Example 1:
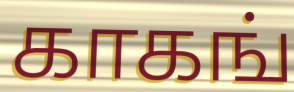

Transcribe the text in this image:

காகங்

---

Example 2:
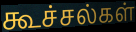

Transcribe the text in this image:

கூச்சல்கள்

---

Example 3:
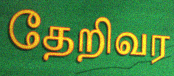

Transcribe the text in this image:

தேறிவர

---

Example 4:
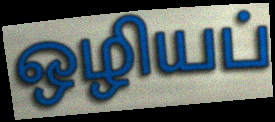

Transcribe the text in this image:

ஒழியப்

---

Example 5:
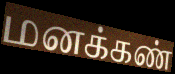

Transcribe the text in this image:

மனக்கண்